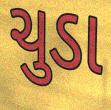
ચુડા